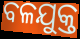
ବଳଯୁକ୍ତ